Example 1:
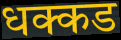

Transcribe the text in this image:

धक्कड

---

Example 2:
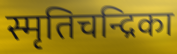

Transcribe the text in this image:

स्मृतिचन्द्रिका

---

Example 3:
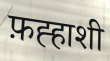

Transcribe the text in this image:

फ़ह्हाशी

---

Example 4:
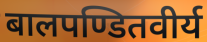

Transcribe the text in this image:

बालपण्डितवीर्य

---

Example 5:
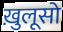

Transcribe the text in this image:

ख़ुलूसो